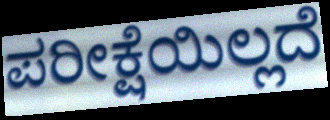
ಪರೀಕ್ಷೆಯಿಲ್ಲದೆ